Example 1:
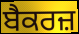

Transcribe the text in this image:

ਬੈਕਰਜ਼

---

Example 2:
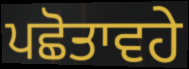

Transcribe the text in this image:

ਪਛੋਤਾਵਹੇ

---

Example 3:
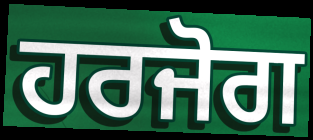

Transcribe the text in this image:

ਹਰਜੋਗ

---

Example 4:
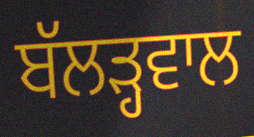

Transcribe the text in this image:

ਬੱਲੜ੍ਹਵਾਲ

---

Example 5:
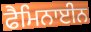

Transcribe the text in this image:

ਫੈਮਿਨਾਈਨ